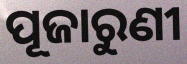
ପୂଜାରୁଣୀ